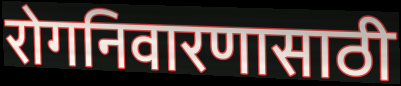
रोगनिवारणासाठी